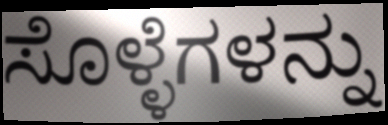
ಸೊಳ್ಳೆಗಳನ್ನು